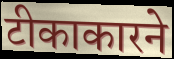
टीकाकारने